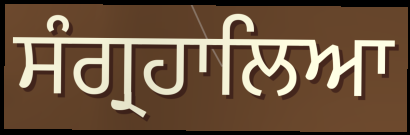
ਸੰਗ੍ਰਹਾਲਿਆ